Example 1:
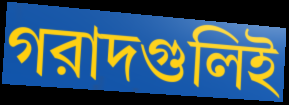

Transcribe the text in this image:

গরাদগুলিই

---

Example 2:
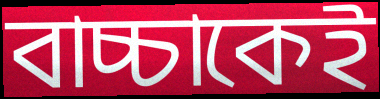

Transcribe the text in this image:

বাচ্চাকেই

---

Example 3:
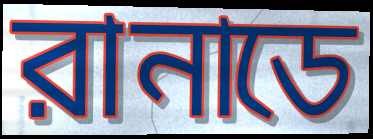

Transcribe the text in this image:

রানাডে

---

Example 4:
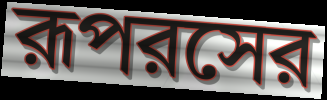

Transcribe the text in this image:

রূপরসের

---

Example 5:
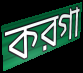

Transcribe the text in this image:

করগা